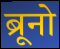
ब्रूनो